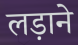
लड़ाने